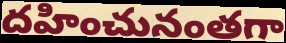
దహించునంతగా